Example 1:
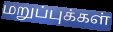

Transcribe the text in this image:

மறுப்புக்கள்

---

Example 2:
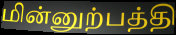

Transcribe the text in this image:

மின்னுற்பத்தி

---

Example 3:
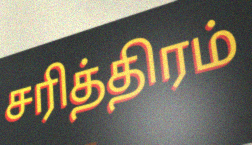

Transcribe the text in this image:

சரித்திரம்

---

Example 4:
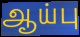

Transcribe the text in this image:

ஆய்பு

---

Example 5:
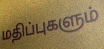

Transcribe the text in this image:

மதிப்புகளும்